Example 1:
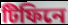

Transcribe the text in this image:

টিফিনে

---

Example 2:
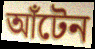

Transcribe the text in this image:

আঁটেন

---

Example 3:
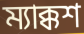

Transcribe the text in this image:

ম্যাক্কশ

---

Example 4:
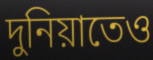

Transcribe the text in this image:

দুনিয়াতেও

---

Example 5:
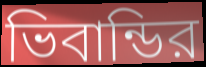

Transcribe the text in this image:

ভিবান্ডির